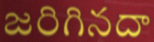
జరిగినదా